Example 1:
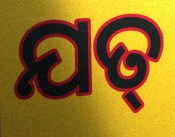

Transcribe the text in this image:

ଯତ୍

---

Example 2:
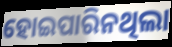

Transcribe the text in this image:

ହୋଇପାରିନଥିଲା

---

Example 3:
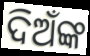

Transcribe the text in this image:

ଦିଅଁଙ୍କ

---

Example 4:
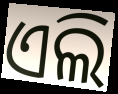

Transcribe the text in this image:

ଏଲି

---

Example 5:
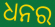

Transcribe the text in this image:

ଧନର